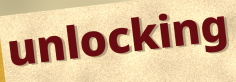
unlocking